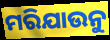
ମରିଯାଉନୁ